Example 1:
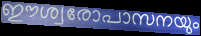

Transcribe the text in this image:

ഈശ്വരോപാസനയും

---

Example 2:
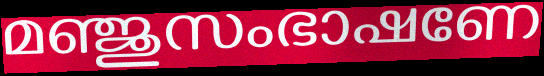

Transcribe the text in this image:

മഞ്ജുസംഭാഷണേ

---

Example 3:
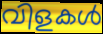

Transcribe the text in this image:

വിളകൾ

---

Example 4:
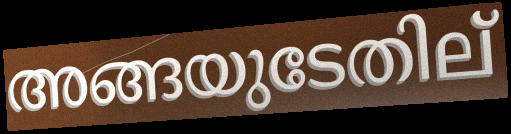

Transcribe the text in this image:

അങ്ങയുടേതില്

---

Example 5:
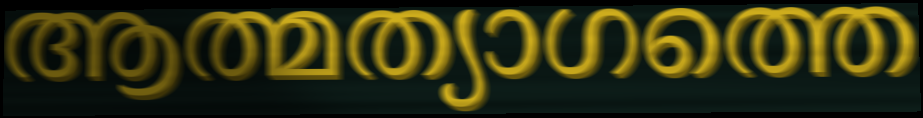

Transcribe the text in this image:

ആത്മത്യാഗത്തെ